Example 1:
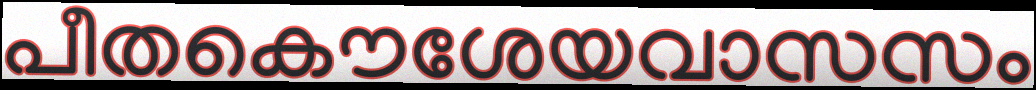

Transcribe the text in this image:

പീതകൌശേയവാസസം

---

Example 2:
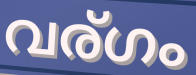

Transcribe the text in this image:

വര്ഗം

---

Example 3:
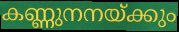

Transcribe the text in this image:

കണ്ണുനനയ്ക്കും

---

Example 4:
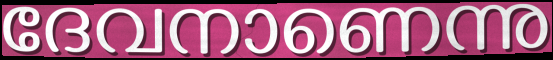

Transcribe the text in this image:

ദേവനാണെന്നു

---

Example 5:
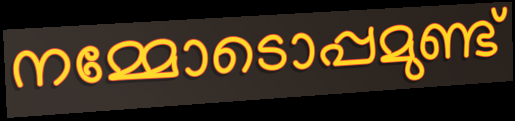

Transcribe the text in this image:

നമ്മോടൊപ്പമുണ്ട്